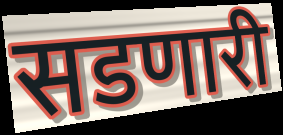
सडणारी